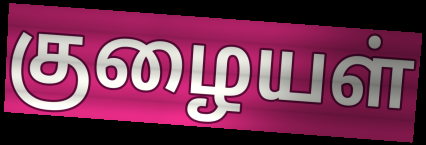
குழையள்